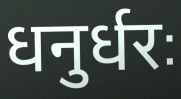
धनुर्धरः